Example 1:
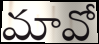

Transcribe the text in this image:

మావో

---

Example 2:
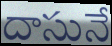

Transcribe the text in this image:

దాసునే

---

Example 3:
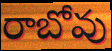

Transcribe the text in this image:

రాబోవు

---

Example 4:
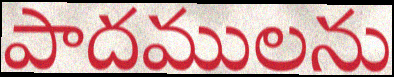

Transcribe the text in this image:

పాదములను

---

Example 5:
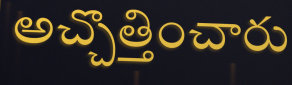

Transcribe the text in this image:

అచ్చొత్తించారు